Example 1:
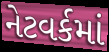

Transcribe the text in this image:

નેટવર્કમાં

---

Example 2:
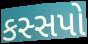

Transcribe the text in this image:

કસ્સપો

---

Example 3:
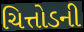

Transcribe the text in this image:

ચિત્તોડની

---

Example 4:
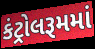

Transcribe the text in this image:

કંટ્રોલરૂમમાં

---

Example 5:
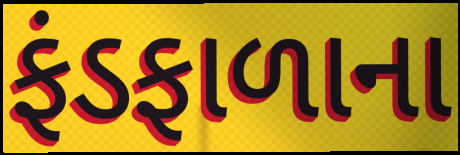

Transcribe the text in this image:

ફંડફાળાના